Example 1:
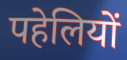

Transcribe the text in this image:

पहेलियों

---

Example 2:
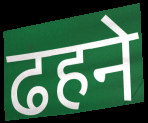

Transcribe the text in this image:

ढहने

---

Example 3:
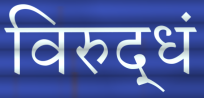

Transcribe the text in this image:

विरुद्धं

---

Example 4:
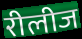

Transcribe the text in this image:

रीलीज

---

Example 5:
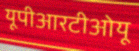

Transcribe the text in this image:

यूपीआरटीओयू